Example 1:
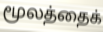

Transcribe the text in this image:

மூலத்தைக்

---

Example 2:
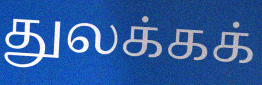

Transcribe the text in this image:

துலக்கக்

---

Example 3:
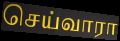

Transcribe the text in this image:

செய்வாரா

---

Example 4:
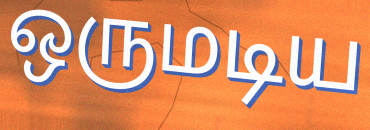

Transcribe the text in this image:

ஒருமடிய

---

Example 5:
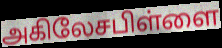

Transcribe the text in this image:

அகிலேசபிள்ளை